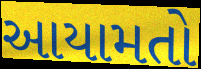
આયામતો